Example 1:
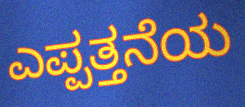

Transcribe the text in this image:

ಎಪ್ಪತ್ತನೆಯ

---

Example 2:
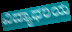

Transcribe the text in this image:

ವಿದ್ಯಾಧರಿಯ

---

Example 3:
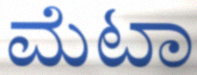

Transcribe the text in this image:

ಮೆಟಾ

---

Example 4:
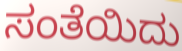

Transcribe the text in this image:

ಸಂತೆಯಿದು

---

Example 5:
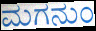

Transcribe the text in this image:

ಮಗನುಂ